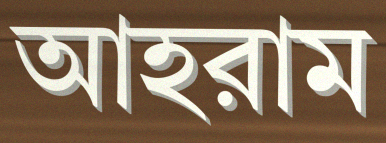
আহরাম